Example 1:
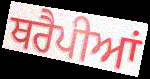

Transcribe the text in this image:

ਥਰੈਪੀਆਂ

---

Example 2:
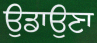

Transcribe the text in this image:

ਉਡਾਉਣਾ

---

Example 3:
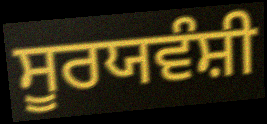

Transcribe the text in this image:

ਸੂਰਯਵੰਸ਼ੀ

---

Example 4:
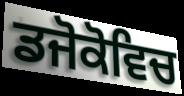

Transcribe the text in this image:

ਡਜੋਕੋਵਿਚ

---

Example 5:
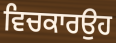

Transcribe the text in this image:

ਵਿਚਕਾਰਉਹ